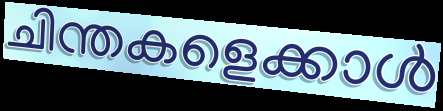
ചിന്തകളെക്കാൾ